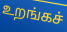
உறங்கச்